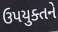
ઉપયુક્તને